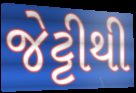
જેટ્ટીથી